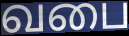
வபை